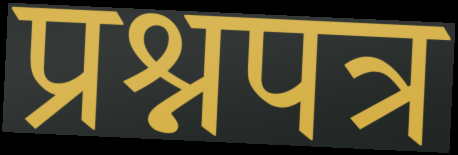
प्रश्नपत्र